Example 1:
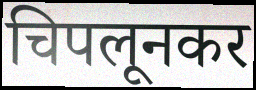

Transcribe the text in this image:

चिपलूनकर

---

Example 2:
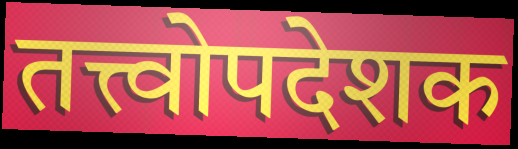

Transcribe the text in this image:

तत्त्वोपदेशक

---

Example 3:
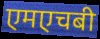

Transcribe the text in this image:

एमएचबी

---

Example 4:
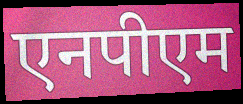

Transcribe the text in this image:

एनपीएम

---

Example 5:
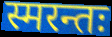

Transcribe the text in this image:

स्मरन्तः